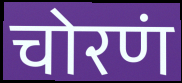
चोरणं